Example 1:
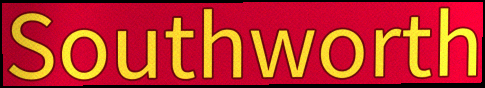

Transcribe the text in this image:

Southworth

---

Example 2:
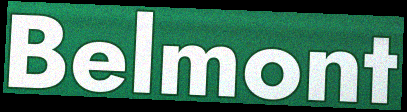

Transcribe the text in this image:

Belmont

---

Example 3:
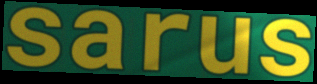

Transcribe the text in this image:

sarus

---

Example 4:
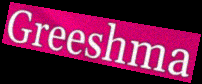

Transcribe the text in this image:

Greeshma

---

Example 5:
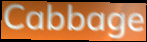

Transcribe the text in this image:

Cabbage